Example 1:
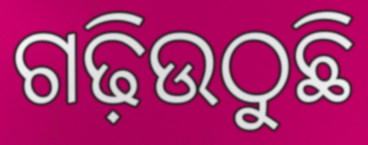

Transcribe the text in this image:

ଗଢ଼ିଉଠୁଛି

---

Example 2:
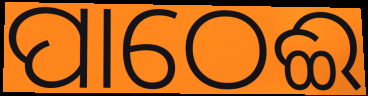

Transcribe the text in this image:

ପାଠେଈ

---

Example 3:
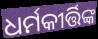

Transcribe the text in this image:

ଧର୍ମକୀର୍ତ୍ତିଙ୍କ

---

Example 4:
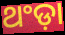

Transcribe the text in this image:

ଥଂଡ଼ା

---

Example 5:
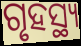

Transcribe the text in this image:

ଗୃହସ୍ଥ୍ୟ